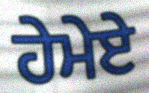
ਹੇਮੇਏ